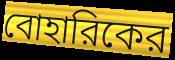
বোহারিকের